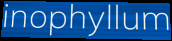
inophyllum